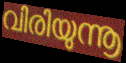
വിരിയുന്നൂ